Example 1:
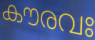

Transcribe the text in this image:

കൗരവഃ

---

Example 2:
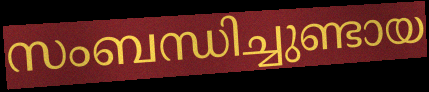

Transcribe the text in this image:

സംബന്ധിച്ചുണ്ടായ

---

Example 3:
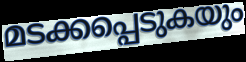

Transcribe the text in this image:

മടക്കപ്പെടുകയും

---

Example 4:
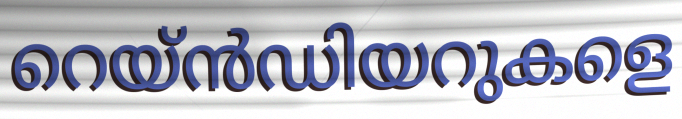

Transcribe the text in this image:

റെയ്ൻഡിയറുകളെ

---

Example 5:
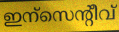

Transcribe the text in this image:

ഇന്സെന്റീവ്